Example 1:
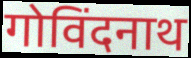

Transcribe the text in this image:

गोविंदनाथ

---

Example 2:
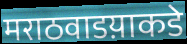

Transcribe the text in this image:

मराठवाडय़ाकडे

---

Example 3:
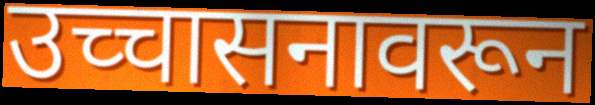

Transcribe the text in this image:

उच्चासनावरून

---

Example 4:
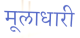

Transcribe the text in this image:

मूलाधारी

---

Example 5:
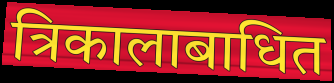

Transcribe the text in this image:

त्रिकालाबाधित